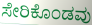
ಸೇರಿಕೊಂಡವು